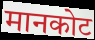
मानकोट